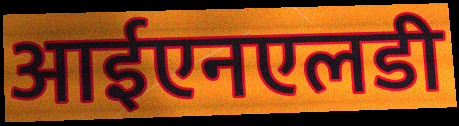
आईएनएलडी